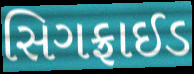
સિગફ્રાઈડ